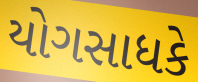
યોગસાધકે